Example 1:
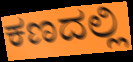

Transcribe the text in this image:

ಕಣದಲ್ಲಿ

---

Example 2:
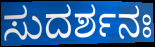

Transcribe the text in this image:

ಸುದರ್ಶನಃ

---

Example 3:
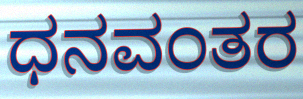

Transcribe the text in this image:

ಧನವಂತರ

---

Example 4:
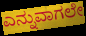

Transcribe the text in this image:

ಎನ್ನುವಾಗಲೇ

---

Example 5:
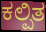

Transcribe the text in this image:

ಕಲ್ಪಿತ